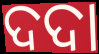
ଦଦା